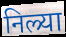
निल्या